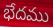
భేదము